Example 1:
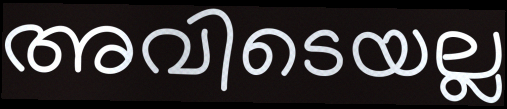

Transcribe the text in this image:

അവിടെയല്ല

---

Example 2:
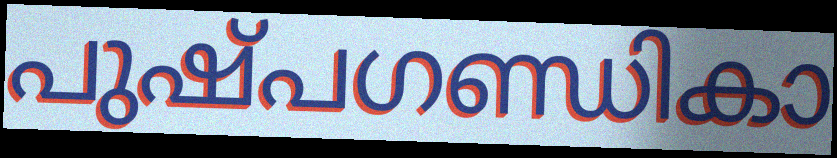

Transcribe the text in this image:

പുഷ്പഗണ്ഡികാ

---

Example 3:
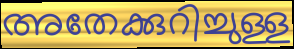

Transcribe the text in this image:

അതേക്കുറിച്ചുള്ള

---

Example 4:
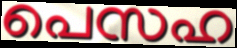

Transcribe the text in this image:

പെസഹ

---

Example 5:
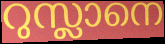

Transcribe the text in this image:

റുസ്ലാനെ